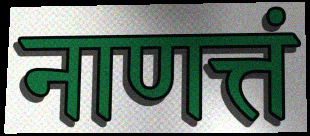
नाणत्तं